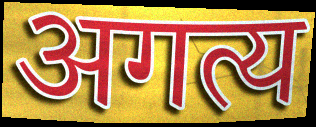
अगत्य